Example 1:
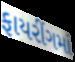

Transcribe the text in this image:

ફાયરીંગમાં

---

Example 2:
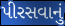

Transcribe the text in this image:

પીરસવાનું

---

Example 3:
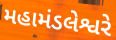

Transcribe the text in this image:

મહામંડલેશ્વરે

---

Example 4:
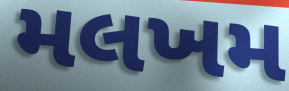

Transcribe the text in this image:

મલખમ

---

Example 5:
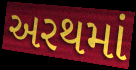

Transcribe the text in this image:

અરથમાં